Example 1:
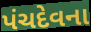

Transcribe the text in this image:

પંચદેવના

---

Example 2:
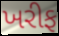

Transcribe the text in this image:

ખરીફ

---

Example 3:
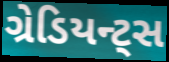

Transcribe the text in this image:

ગ્રેડિયન્ટ્સ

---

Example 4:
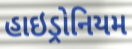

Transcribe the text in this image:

હાઇડ્રોનિયમ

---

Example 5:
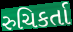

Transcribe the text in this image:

રુચિકર્તા